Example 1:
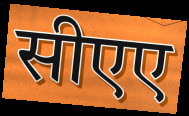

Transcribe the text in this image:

सीएए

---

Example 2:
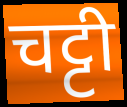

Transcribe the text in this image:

चट्टी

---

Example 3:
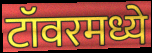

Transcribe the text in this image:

टॉवरमध्ये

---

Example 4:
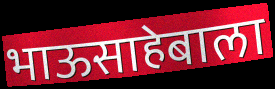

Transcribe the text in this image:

भाऊसाहेबाला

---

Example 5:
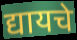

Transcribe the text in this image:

द्यायचे